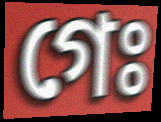
গেঃ